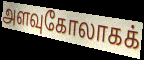
அளவுகோலாகக்